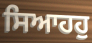
ਸਿਆਹਹੁ